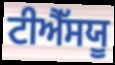
ਟੀਐੱਸਯੂ